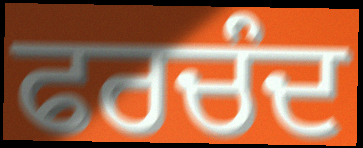
ਫਰਚੰਦ